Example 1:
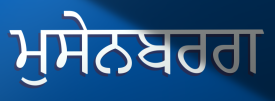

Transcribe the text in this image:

ਮੁਸੇਨਬਰਗ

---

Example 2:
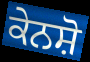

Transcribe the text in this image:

ਕੇਨਸ਼ੋ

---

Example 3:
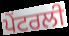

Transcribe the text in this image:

ਪੇਂਟਰਲੀ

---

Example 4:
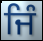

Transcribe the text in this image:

ਜਿੰ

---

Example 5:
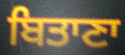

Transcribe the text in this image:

ਬਿਤਾਣਾ